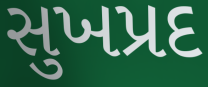
સુખપ્રદ